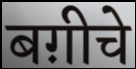
बग़ीचे